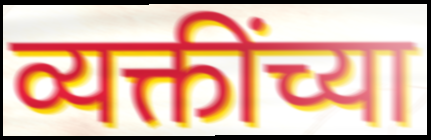
व्यक्तींच्या